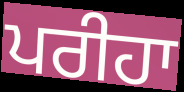
ਪਰੀਹਾ